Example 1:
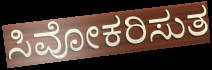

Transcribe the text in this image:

ಸಿವೋಕರಿಸುತ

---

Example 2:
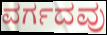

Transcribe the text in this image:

ವರ್ಗದವು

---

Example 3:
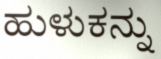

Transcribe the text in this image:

ಹುಳುಕನ್ನು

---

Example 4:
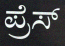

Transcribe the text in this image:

ಪ್ರೆಸ್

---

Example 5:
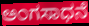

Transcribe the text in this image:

ಅಂಗಸಾಧನೆ